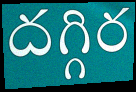
దగ్గిర